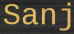
Sanj